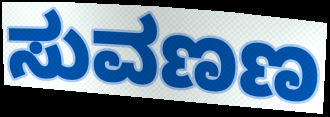
ಸುವಣಣ